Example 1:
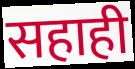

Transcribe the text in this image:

सहाही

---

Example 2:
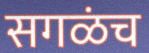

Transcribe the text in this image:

सगळंच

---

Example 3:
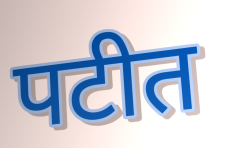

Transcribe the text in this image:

पटीत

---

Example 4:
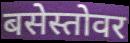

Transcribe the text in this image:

बसेस्तोवर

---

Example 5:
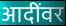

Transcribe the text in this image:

आदींवर